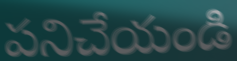
పనిచేయండి